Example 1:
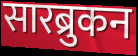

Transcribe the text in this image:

सारब्रुकन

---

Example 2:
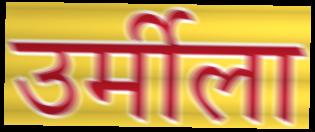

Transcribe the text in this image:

उर्मीला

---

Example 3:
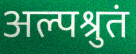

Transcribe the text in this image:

अल्पश्रुतं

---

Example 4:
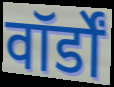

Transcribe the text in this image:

वॉर्डों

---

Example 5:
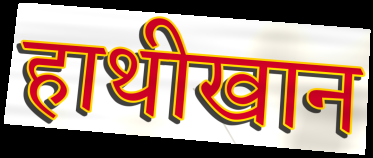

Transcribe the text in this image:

हाथीखान